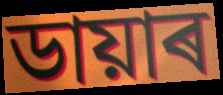
ডায়াৰ